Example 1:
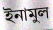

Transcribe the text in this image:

ইনামুল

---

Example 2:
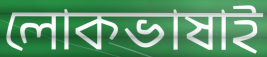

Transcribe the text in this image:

লোকভাষাই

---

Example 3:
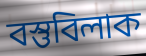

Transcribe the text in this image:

বস্তুবিলাক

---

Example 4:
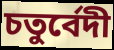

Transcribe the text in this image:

চতুৰ্বেদী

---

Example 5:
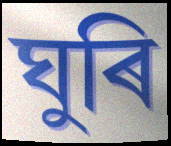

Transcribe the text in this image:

ঘুৰি